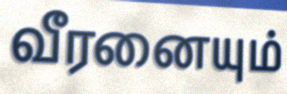
வீரனையும்